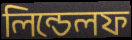
লিন্ডেলফ